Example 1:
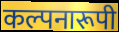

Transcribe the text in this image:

कल्पनारूपी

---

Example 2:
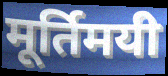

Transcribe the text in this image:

मूर्तिमयी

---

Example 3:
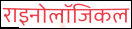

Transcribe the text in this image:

राइनोलॉजिकल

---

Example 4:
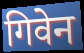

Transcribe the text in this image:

गिवेन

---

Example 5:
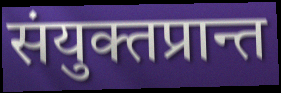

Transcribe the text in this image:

संयुक्तप्रान्त